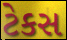
ટેકસ